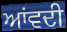
ਆਂਵਦੀ